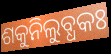
ଶକୁନିଲୁବ୍ଧକଃ